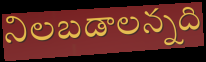
నిలబడాలన్నది